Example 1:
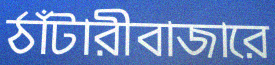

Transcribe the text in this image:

ঠাঁটারীবাজারে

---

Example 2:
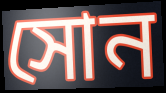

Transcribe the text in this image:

সোন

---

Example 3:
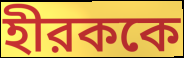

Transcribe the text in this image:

হীরককে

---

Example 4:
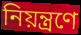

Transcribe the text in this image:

নিয়ন্ত্রণে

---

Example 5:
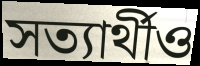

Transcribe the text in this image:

সত্যার্থীও